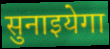
सुनाइयेगा